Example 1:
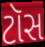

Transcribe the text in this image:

ટૉસ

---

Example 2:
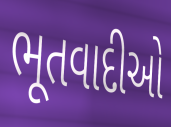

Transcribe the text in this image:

ભૂતવાદીઓ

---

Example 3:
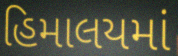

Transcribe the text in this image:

હિમાલયમાં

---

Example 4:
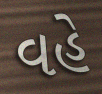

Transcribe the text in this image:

વહે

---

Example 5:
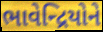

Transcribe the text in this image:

ભાવેન્દ્રિયોને